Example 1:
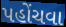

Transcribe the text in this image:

પહોંચવા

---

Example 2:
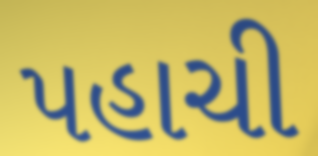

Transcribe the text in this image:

પહાચી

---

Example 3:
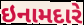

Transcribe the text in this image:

ઇનામદારે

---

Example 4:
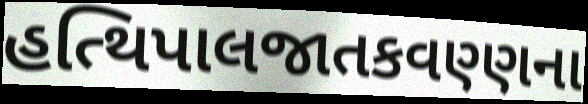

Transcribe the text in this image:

હત્થિપાલજાતકવણ્ણના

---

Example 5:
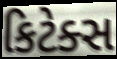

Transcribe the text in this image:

કિટેક્સ